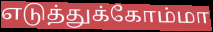
எடுத்துக்கோம்மா